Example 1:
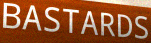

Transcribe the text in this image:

BASTARDS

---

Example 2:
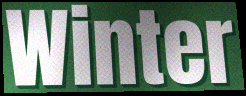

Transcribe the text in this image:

Winter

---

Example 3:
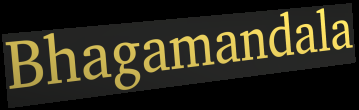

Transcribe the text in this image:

Bhagamandala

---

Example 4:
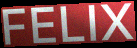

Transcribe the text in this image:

FELIX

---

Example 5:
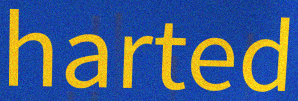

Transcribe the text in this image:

harted